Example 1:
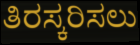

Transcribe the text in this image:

ತಿರಸ್ಕರಿಸಲು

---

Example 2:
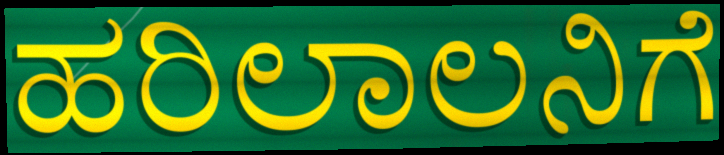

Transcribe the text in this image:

ಹರಿಲಾಲನಿಗೆ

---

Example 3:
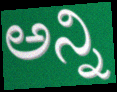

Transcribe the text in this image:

ಅನ್ನಿ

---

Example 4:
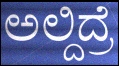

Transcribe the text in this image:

ಅಲ್ದಿದ್ರೆ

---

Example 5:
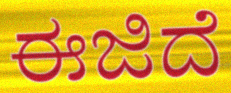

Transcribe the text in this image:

ಈಜಿದೆ